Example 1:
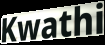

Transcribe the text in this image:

Kwathi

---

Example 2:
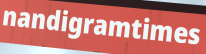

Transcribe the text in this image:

nandigramtimes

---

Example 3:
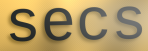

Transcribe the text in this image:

secs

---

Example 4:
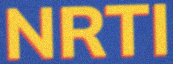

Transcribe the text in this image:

NRTI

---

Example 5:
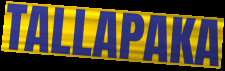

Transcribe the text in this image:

TALLAPAKA